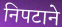
निपटाने